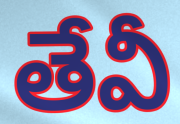
తేవీ